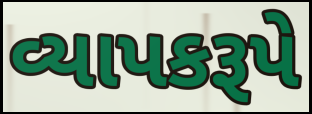
વ્યાપકરૂપે